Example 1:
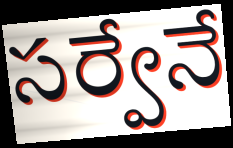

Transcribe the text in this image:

సర్వేనే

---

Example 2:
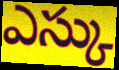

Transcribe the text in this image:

ఎస్కు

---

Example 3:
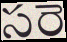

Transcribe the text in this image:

సరె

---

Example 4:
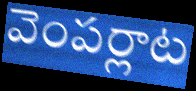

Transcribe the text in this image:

వెంపర్లాట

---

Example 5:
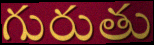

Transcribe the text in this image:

గురుతు